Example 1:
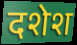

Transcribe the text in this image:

दशेश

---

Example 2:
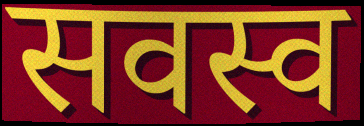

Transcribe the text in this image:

सवस्व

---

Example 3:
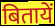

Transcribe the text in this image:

बितायें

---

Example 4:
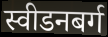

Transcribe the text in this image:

स्वीडनबर्ग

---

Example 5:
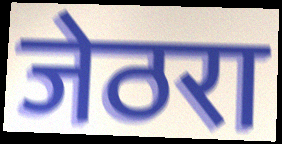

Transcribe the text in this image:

जेठरा